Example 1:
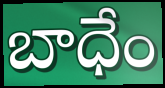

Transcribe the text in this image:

బాధేం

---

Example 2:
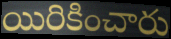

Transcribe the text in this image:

యిరికించారు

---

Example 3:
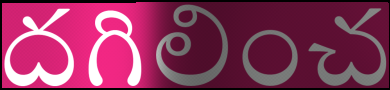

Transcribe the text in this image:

దగిలించ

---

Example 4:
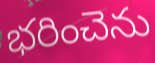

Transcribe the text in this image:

భరించెను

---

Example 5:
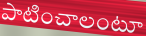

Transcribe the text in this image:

పాటించాలంటూ